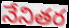
నేనితర